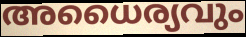
അധൈര്യവും